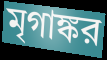
মৃগাঙ্কর